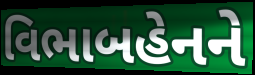
વિભાબહેનને